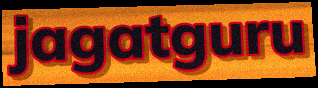
jagatguru